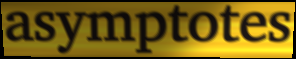
asymptotes